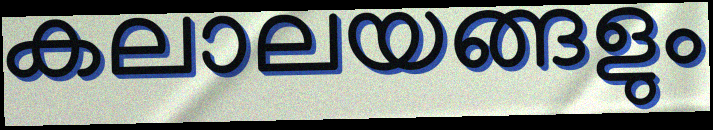
കലാലയങ്ങളും